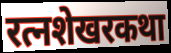
रत्नशेखरकथा